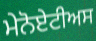
ਮੇਨੋਏਟੀਅਸ